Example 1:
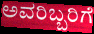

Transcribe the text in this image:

ಅವರಿಬ್ಬರಿಗೆ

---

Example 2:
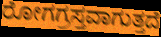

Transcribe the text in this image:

ರೋಗಗ್ರಸ್ತವಾಗುತ್ತದೆ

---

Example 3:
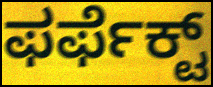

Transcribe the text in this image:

ಫರ್ಫೆಕ್ಟ್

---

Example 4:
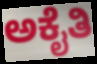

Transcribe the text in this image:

ಅಕೈತಿ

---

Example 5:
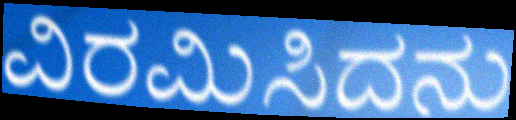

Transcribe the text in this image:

ವಿರಮಿಸಿದನು